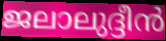
ജലാലുദ്ദീൻ